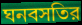
ঘনবসতির